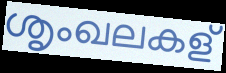
ശൃംഖലകള്